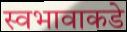
स्वभावाकडे